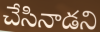
చేసినాడని